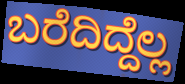
ಬರೆದಿದ್ದೆಲ್ಲ